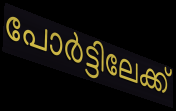
പോർട്ടിലേക്ക്